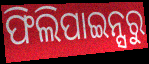
ଫିଲିପାଇନ୍ସରୁ